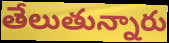
తేలుతున్నారు